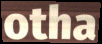
otha